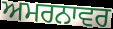
ਅਮਰਨਾਵਰ